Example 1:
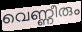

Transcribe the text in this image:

വെണ്ണീരും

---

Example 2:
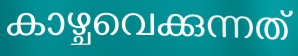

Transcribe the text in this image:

കാഴ്ചവെക്കുന്നത്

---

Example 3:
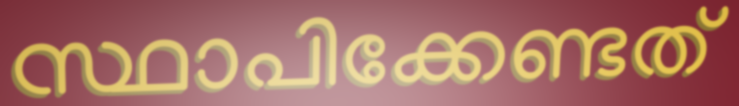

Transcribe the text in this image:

സ്ഥാപിക്കേണ്ടത്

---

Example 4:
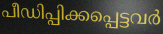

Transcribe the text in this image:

പീഡിപ്പിക്കപ്പെട്ടവർ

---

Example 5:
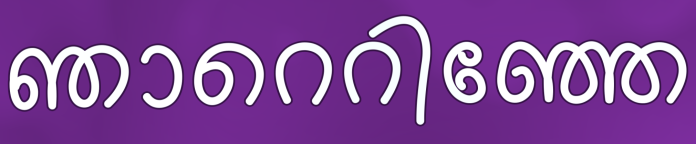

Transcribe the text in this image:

ഞാറെറിഞ്ഞേ